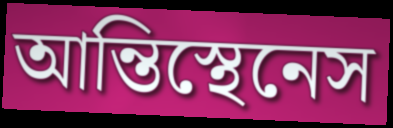
আন্তিস্থেনেস